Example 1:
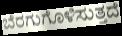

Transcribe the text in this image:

ಬೆರಗುಗೊಳಿಸುತ್ತದೆ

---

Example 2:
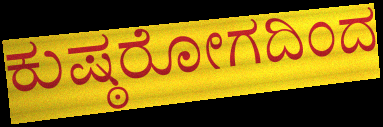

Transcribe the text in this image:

ಕುಷ್ಠರೋಗದಿಂದ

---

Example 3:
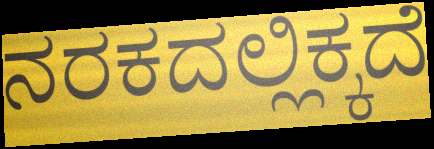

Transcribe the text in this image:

ನರಕದಲ್ಲಿಕ್ಕದೆ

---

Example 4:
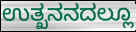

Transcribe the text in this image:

ಉತ್ಖನನದಲ್ಲೂ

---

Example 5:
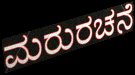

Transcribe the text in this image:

ಮರುರಚನೆ